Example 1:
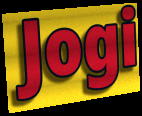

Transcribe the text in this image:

Jogi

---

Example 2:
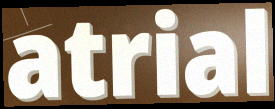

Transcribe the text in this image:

atrial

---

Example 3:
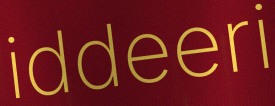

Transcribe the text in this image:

iddeeri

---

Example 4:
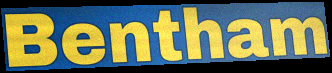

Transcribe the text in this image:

Bentham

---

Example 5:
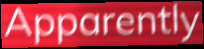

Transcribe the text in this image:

Apparently